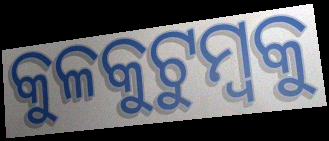
କୁଳକୁଟୁମ୍ବକୁ